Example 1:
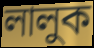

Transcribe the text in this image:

লালুক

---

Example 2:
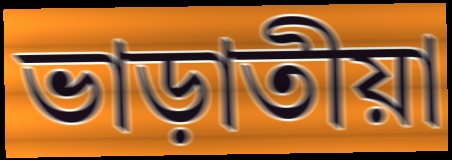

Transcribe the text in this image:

ভাড়াতীয়া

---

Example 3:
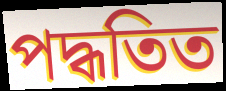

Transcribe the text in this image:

পদ্ধতিত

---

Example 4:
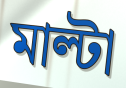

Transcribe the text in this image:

মাল্টা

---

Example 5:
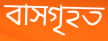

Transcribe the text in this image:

বাসগৃহত